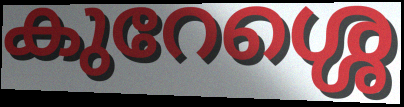
കുറേശ്ശെ